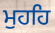
ਮੁਹਹਿ